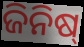
ଜିନିଷ୍